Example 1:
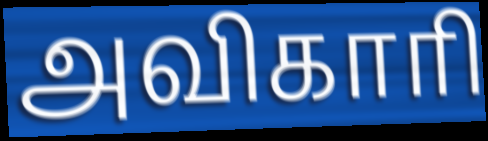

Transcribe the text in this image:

அவிகாரி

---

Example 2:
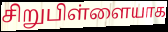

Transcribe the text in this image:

சிறுபிள்ளையாக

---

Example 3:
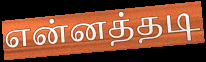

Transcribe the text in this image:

என்னத்தடி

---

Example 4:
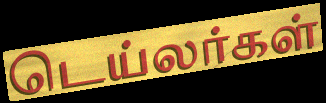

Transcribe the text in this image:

டெய்லர்கள்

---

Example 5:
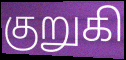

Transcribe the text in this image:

குறுகி